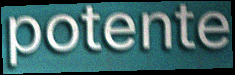
potente